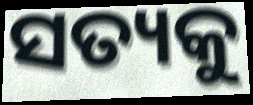
ସତ୍ୟକୁ